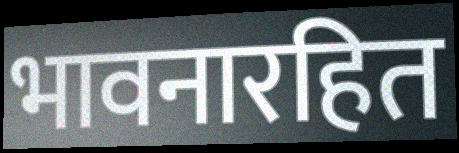
भावनारहित